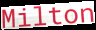
Milton